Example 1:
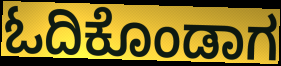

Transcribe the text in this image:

ಓದಿಕೊಂಡಾಗ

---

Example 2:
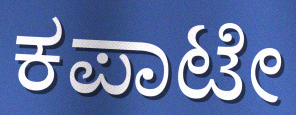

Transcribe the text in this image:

ಕಪಾಟೇ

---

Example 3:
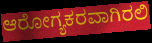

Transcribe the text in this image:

ಆರೋಗ್ಯಕರವಾಗಿರಲಿ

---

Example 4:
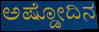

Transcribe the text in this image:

ಅಷ್ಡೋದಿನ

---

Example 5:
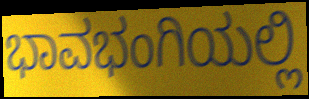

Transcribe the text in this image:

ಭಾವಭಂಗಿಯಲ್ಲಿ